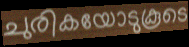
ചുരികയോടുകൂടെ